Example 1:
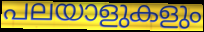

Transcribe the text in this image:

പലയാളുകളും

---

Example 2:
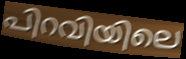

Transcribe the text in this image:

പിറവിയിലെ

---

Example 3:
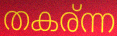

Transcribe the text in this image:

തകര്ന്ന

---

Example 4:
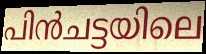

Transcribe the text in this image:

പിൻചട്ടയിലെ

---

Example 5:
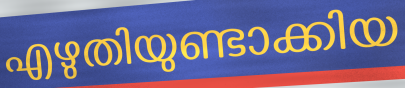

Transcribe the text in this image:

എഴുതിയുണ്ടാക്കിയ